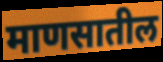
माणसातील